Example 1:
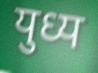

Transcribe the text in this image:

युध्य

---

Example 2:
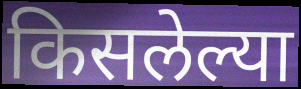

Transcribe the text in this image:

किसलेल्या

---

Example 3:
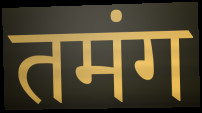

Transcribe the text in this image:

तमंग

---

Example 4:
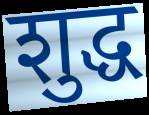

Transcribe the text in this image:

शुद्ध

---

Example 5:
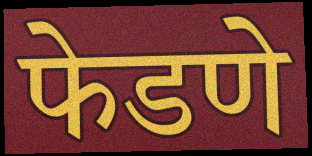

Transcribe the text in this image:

फेडणे